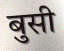
बुसी